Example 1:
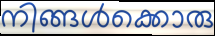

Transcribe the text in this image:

നിങ്ങൾക്കൊരു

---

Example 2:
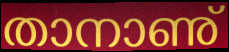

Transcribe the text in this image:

താനാണു്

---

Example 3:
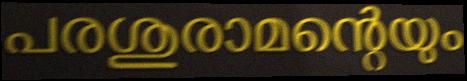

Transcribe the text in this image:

പരശുരാമന്റെയും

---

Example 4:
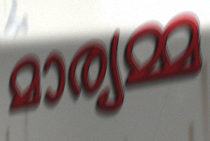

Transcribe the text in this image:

മാര്യമ്മ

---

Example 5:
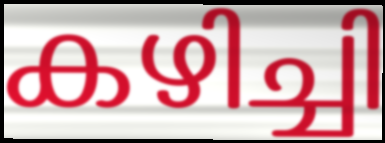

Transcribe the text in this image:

കഴിച്ചി